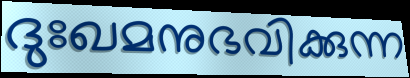
ദുഃഖമനുഭവിക്കുന്ന